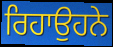
ਰਿਹਾਉਹਨੇ